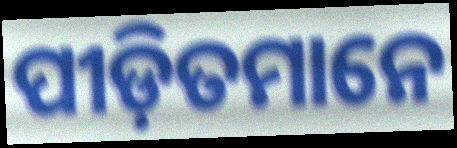
ପୀଡ଼ିତମାନେ